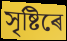
সৃষ্টিৰে